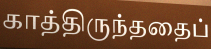
காத்திருந்ததைப்